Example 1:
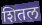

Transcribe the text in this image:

शितल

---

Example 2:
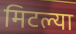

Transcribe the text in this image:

मिटल्या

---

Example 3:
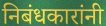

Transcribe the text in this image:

निबंधकारांनी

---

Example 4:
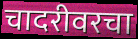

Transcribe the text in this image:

चादरीवरचा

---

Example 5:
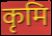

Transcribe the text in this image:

कृमि